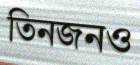
তিনজনও